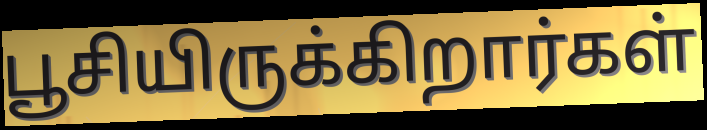
பூசியிருக்கிறார்கள்